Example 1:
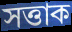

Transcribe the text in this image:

সত্তাক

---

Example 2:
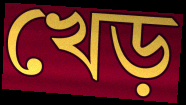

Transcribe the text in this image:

খেড়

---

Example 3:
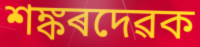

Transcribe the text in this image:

শঙ্কৰদেৱক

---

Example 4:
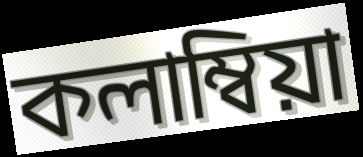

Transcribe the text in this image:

কলাম্বিয়া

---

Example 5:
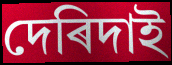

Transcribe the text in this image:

দেৰিদাই